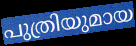
പുത്രിയുമായ